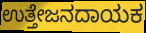
ಉತ್ತೇಜನದಾಯಕ